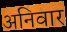
अनिवार